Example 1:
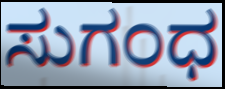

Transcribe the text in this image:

ಸುಗಂಧ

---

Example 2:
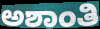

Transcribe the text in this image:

ಅಶಾಂತಿ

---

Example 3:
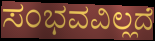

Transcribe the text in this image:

ಸಂಭವವಿಲ್ಲದೆ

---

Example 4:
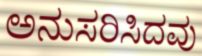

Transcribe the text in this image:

ಅನುಸರಿಸಿದವು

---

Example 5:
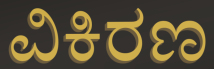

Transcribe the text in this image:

ವಿಕಿರಣ